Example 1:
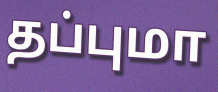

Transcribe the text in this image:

தப்புமா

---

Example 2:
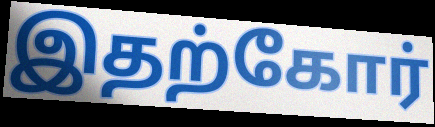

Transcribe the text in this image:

இதற்கோர்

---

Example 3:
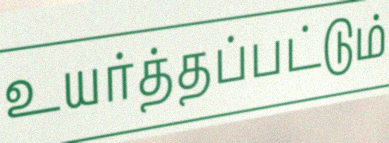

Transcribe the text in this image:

உயர்த்தப்பட்டும்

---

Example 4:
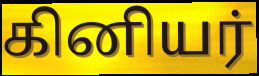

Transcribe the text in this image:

கினியர்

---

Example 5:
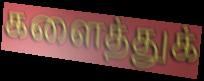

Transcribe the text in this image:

களைத்துக்